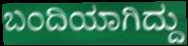
ಬಂದಿಯಾಗಿದ್ದು